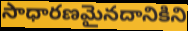
సాధారణమైనదానికిని